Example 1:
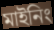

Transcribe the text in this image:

মাইনিং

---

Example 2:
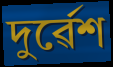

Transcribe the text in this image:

দুৰ্ৱেশ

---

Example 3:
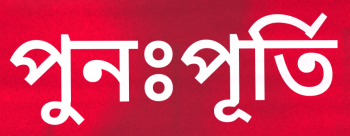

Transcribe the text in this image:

পুনঃপূৰ্তি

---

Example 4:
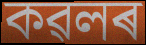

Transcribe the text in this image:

কৱলৰ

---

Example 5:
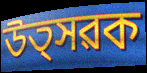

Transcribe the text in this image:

উত্সৱক